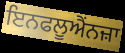
ਇਨਫਲੂਐਂਨਜ਼ਾ